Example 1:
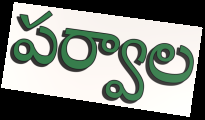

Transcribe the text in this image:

పర్వాల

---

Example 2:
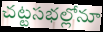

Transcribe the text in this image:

చట్టసభల్లోనూ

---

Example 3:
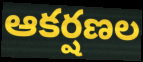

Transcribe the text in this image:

ఆకర్షణల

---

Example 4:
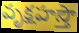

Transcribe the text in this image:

వృక్షహస్తౌ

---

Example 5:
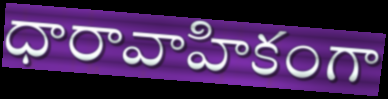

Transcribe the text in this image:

ధారావాహికంగా